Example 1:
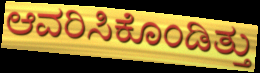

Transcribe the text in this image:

ಆವರಿಸಿಕೊಂಡಿತ್ತು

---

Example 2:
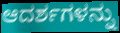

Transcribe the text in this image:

ಆದರ್ಶಗಳನ್ನು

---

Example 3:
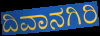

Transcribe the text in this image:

ದಿವಾನಗಿರಿ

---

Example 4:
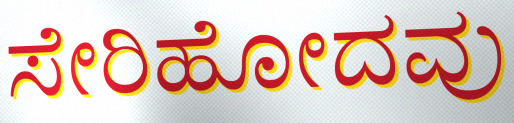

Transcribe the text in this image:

ಸೇರಿಹೋದವು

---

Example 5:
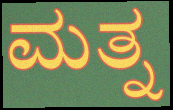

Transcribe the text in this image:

ಮತ್ನ